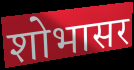
शोभासर